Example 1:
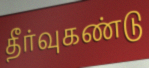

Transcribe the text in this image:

தீர்வுகண்டு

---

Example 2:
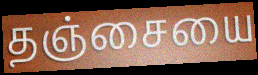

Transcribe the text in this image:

தஞ்சையை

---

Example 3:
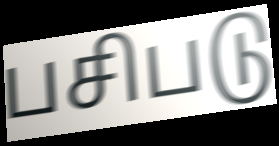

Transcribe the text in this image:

பசிபடு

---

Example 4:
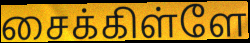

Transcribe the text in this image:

சைக்கிள்ளே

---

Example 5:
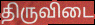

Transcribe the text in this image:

திருவிடை